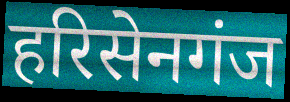
हरिसेनगंज